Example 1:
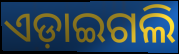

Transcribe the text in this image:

ଏଡ଼ାଇଗଲି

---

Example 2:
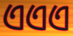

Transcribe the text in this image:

ଏଏଏ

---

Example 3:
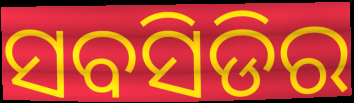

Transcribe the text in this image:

ସବସିଡିର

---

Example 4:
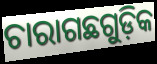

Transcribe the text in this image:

ଚାରାଗଛଗୁଡ଼ିକ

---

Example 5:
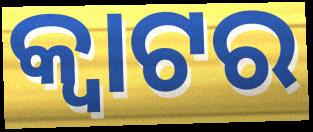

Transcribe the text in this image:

କ୍ୱାଟର